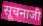
सूचनाजी